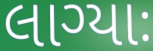
લાગ્યાઃ